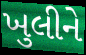
ખુલીને